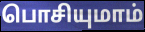
பொசியுமாம்